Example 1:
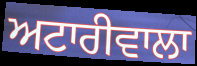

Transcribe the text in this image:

ਅਟਾਰੀਵਾਲਾ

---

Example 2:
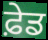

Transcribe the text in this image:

ਫ਼ੇਡ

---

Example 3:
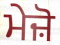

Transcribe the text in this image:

ਮੇਜ਼ੋ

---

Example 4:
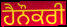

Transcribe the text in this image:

ਹੈਨੌਕਰੀ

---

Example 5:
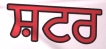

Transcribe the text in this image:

ਸ਼ਟਰ